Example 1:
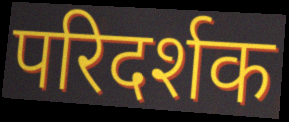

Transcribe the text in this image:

परिदर्शक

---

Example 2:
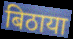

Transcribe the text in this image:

बिठाया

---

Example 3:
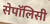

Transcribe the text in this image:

सेपॉलिसी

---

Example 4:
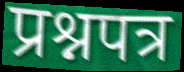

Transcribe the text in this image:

प्रश्नपत्र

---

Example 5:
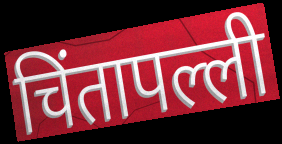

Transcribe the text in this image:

चिंतापल्ली